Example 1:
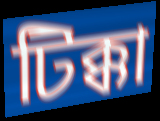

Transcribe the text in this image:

টিক্কা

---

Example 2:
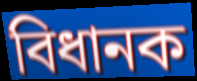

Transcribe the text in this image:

বিধানক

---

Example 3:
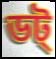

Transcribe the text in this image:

ডট্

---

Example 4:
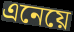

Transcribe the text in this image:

এনেয়ে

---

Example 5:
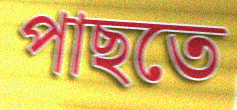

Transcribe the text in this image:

পাছতে